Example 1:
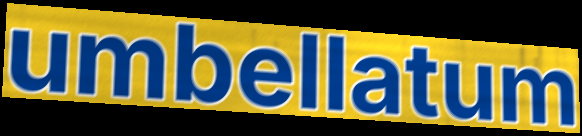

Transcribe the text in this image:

umbellatum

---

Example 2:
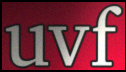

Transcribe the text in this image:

uvf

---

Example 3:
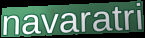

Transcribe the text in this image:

navaratri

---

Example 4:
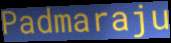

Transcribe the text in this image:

Padmaraju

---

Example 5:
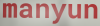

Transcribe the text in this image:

manyun